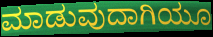
ಮಾಡುವುದಾಗಿಯೂ